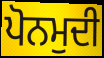
ਪੋਨਮੁਦੀ